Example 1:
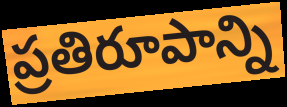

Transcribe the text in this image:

ప్రతిరూపాన్ని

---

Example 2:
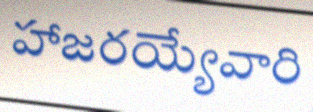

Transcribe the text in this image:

హాజరయ్యేవారి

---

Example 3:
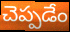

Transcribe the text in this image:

చెప్పడేం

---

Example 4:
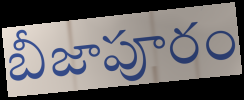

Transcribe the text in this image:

బీజాపూరం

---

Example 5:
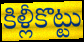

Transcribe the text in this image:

కిళ్లీకొట్టు